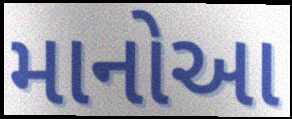
માનોઆ